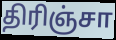
திரிஞ்சா